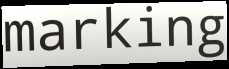
marking